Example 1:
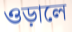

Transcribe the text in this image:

ওড়ালে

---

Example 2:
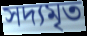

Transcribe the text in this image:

সদ্যমৃত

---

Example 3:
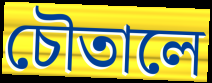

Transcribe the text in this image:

চৌতালে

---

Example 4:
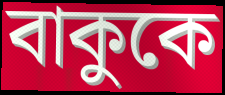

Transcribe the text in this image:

বাকুকে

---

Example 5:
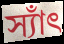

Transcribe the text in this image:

স্যাঁৎ